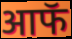
आफॅ